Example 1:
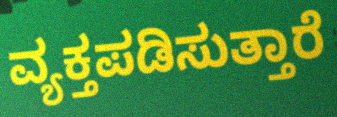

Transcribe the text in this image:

ವ್ಯಕ್ತಪಡಿಸುತ್ತಾರೆ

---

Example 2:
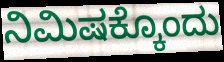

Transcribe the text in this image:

ನಿಮಿಷಕ್ಕೊಂದು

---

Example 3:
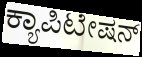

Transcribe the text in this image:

ಕ್ಯಾಪಿಟೇಷನ್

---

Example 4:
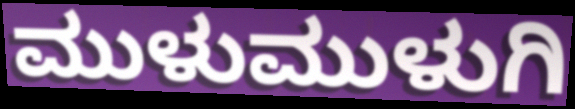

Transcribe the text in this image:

ಮುಳುಮುಳುಗಿ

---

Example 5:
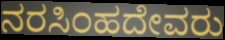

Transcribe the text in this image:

ನರಸಿಂಹದೇವರು